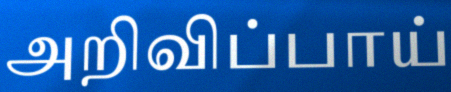
அறிவிப்பாய்